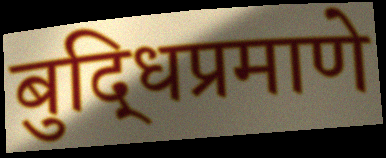
बुद्धिप्रमाणे